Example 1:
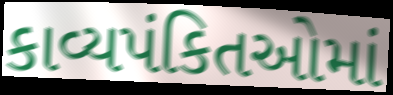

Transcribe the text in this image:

કાવ્યપંકિતઓમાં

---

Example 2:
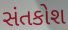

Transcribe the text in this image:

સંતકોશ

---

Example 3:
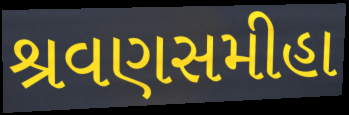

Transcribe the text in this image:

શ્રવણસમીહા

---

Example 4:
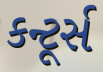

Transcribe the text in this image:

કન્ટૂર્સ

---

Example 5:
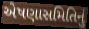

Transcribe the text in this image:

એષણાસમિતિનું